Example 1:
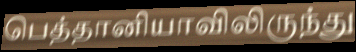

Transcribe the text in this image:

பெத்தானியாவிலிருந்து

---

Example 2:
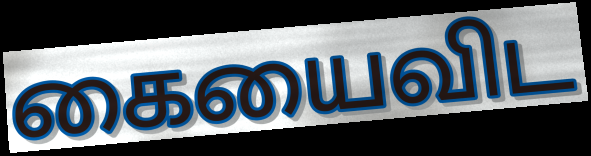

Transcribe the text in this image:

கையைவிட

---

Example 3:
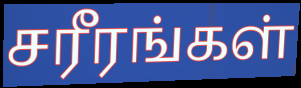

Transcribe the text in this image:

சரீரங்கள்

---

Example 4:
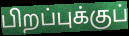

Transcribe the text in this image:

பிறப்புக்குப்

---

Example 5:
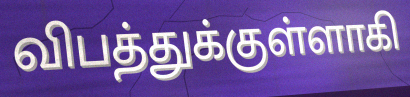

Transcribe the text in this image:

விபத்துக்குள்ளாகி